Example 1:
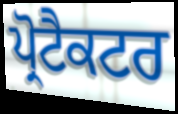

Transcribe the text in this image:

ਪ੍ਰੋਟੈਕਟਰ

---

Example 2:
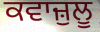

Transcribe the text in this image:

ਕਵਾਜ਼ੁਲੂ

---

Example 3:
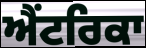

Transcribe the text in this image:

ਐਂਟਰਿਕਾ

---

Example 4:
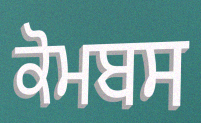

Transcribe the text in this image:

ਕੋਮਬਸ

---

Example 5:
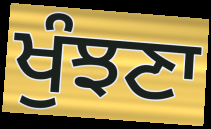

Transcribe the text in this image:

ਖੁੰਝਣਾ